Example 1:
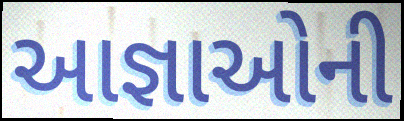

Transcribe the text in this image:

આજ્ઞાઓની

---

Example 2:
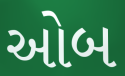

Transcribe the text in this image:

ઓબ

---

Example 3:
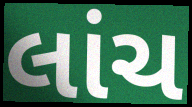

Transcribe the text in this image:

લાંચ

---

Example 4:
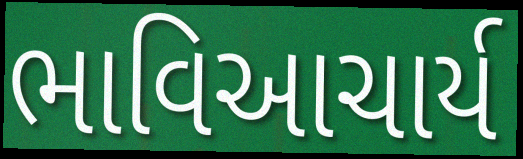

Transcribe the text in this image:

ભાવિઆચાર્ય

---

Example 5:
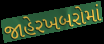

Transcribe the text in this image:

જાહેરખબરોમાં